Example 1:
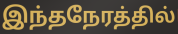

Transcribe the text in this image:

இந்தநேரத்தில்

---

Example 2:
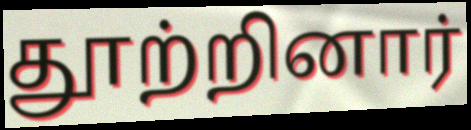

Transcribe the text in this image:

தூற்றினார்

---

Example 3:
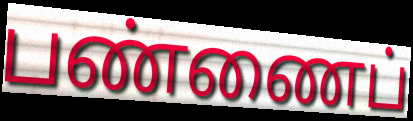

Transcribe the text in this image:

பண்ணைப்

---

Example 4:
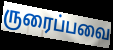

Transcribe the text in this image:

ருரைப்பவை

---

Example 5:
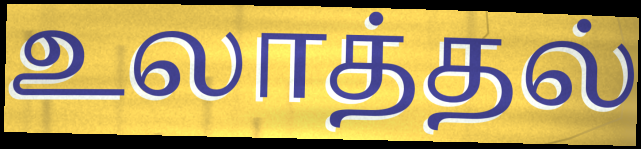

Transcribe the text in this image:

உலாத்தல்